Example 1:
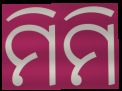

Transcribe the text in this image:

ମିମି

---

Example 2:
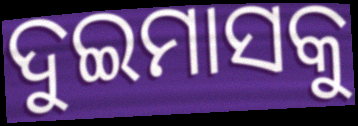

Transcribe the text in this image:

ଦୁଇମାସକୁ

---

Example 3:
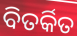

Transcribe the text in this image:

ବିତର୍କିତ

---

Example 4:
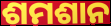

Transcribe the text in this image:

ଶମଶାନ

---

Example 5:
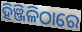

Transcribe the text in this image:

ହିଞ୍ଜିଳିଠାରେ